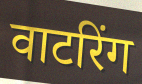
वाटरिंग